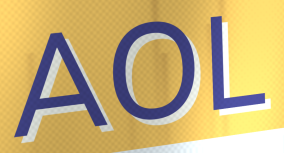
AOL